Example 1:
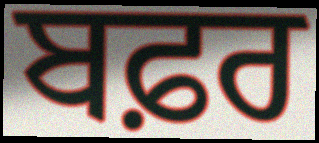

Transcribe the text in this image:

ਬਫ਼ਰ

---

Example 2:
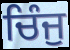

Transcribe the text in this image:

ਚਿੰਜੁ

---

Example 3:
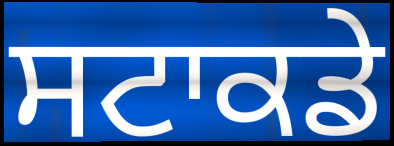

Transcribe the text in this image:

ਸਟਾਕਡੇ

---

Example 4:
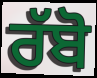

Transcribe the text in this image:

ਰੱਬੋ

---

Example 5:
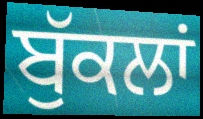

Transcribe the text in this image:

ਬੁੱਕਲਾਂ